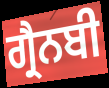
ਗ੍ਰੈਨਬੀ